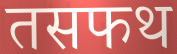
तसफथ